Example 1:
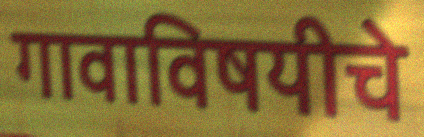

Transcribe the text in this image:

गावाविषयीचे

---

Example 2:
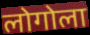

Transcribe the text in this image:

लोगोला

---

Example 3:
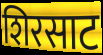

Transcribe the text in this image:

शिरसाट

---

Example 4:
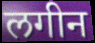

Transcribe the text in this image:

लगीन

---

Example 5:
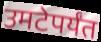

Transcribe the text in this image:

उमटेपर्यंत